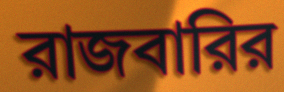
রাজবারির